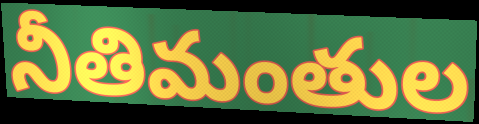
నీతిమంతుల